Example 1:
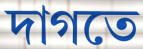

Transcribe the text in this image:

দাগতে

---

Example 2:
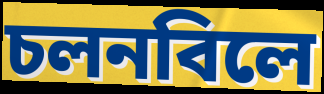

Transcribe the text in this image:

চলনবিলে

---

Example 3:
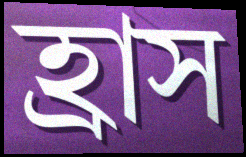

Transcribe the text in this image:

হ্রাস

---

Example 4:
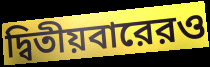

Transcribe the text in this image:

দ্বিতীয়বারেরও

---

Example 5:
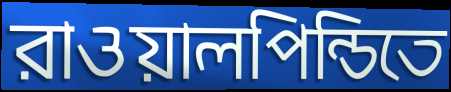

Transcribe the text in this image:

রাওয়ালপিন্ডিতে